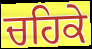
ਚਹਿਕੇ